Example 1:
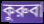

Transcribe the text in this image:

কুরুবা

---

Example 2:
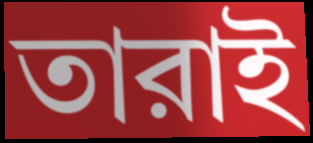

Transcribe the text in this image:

তারাই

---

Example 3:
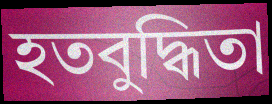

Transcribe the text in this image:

হতবুদ্ধিতা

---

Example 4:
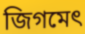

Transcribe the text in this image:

জিগমেৎ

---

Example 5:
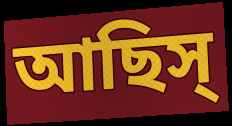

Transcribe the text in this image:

আছিস্